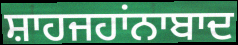
ਸ਼ਾਹਜਹਾਂਨਾਬਾਦ